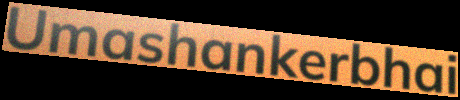
Umashankerbhai